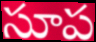
సూప